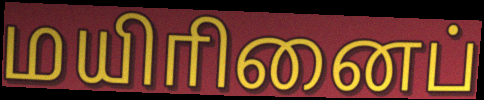
மயிரினைப்